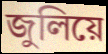
জুলিয়ে